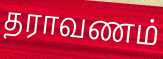
தராவணம்